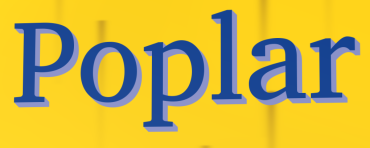
Poplar